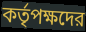
কর্তৃপক্ষদের